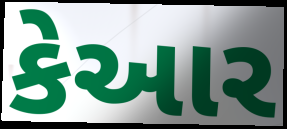
કેઆર